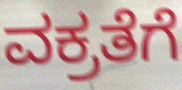
ವಕ್ರತೆಗೆ